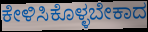
ಕೇಳಿಸಿಕೊಳ್ಳಬೇಕಾದ